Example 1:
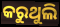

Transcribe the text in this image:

କରୁଥୁଲି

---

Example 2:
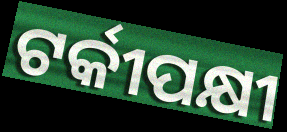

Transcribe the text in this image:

ଟର୍କୀପକ୍ଷୀ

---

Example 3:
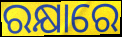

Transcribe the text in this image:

ରକ୍ଷାରେ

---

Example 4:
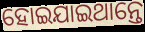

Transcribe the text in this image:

ହୋଇଯାଇଥାନ୍ତେ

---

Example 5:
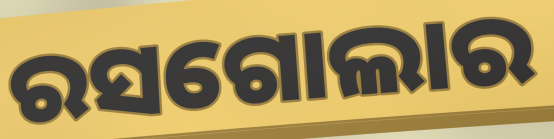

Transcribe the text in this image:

ରସଗୋଲାର